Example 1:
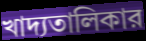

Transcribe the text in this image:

খাদ্যতালিকার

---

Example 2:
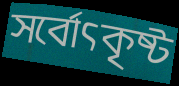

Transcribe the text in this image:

সর্বোৎকৃষ্ট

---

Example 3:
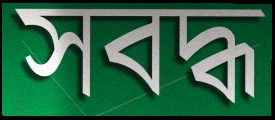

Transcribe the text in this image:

সবদ্ধ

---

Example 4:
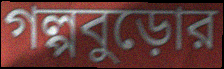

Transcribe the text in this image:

গল্পবুড়োর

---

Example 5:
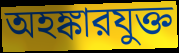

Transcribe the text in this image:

অহঙ্কারযুক্ত